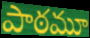
పాఠమూ